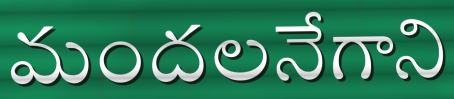
మందలనేగాని